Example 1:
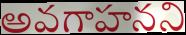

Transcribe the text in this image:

అవగాహనని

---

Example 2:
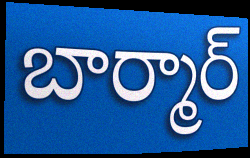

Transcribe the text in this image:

బార్మార్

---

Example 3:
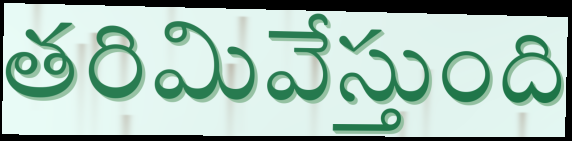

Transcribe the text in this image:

తరిమివేస్తుంది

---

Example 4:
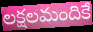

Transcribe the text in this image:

లక్షలమందికే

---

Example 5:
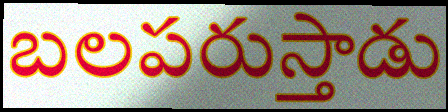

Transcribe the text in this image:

బలపరుస్తాడు